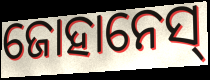
ଜୋହାନେସ୍